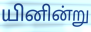
யினின்று